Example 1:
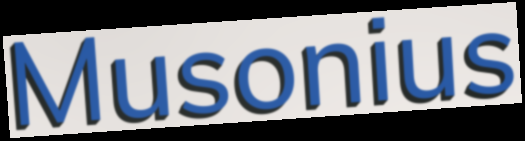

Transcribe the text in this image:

Musonius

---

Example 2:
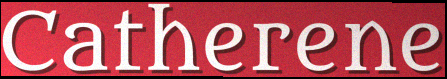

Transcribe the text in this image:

Catherene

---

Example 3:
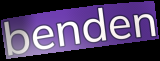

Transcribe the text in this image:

benden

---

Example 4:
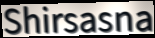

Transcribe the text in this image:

Shirsasna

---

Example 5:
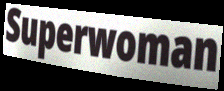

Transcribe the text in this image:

Superwoman